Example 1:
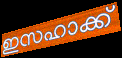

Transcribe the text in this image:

ഇസഹാക്ക്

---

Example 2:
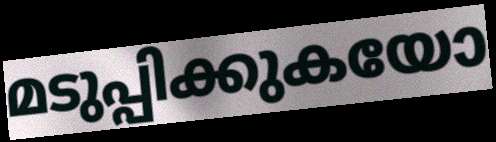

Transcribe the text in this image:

മടുപ്പിക്കുകയോ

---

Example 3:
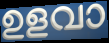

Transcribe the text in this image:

ഉളവാ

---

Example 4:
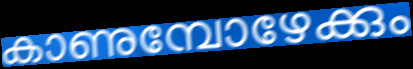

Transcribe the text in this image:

കാണുമ്പോഴേക്കും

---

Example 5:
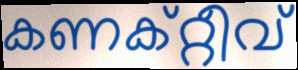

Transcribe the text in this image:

കണക്റ്റീവ്